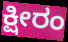
ಕ್ಷೀರಂ